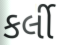
કર્લી